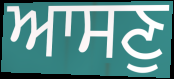
ਆਸਣੁ